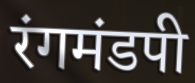
रंगमंडपी